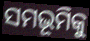
ସମଭୂମିକୁ